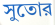
সুতোর